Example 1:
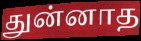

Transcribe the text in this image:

துன்னாத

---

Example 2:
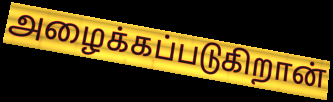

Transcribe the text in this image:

அழைக்கப்படுகிறான்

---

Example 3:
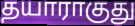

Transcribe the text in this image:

தயாராகுது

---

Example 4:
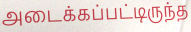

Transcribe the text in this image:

அடைக்கப்பட்டிருந்த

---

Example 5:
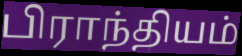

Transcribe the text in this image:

பிராந்தியம்